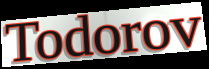
Todorov